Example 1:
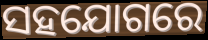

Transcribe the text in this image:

ସହଯୋଗରେ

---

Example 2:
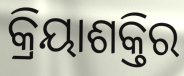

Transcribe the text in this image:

କ୍ରିୟାଶକ୍ତିର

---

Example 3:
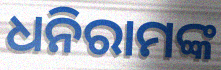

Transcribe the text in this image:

ଧନିରାମଙ୍କ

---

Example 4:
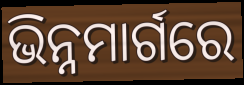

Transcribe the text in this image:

ଭିନ୍ନମାର୍ଗରେ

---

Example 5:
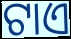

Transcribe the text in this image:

ଟାଏ